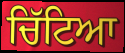
ਚਿੱਟਿਆ